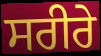
ਸਰੀਰੇ